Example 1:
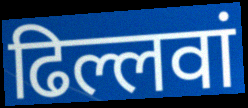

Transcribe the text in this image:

ढिल्लवां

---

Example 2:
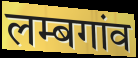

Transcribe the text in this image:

लम्बगांव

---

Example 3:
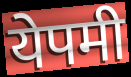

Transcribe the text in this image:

येपमी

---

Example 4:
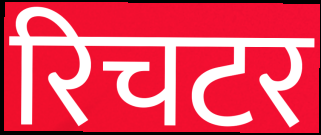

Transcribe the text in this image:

रिचटर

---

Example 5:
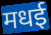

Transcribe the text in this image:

मधई